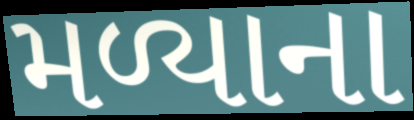
મળ્યાના